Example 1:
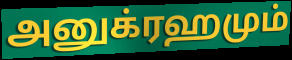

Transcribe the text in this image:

அனுக்ரஹமும்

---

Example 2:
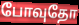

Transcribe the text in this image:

போவுதோ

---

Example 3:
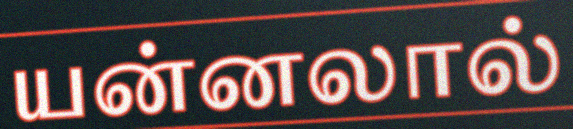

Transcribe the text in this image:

யன்னலால்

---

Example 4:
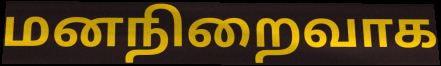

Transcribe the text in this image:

மனநிறைவாக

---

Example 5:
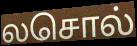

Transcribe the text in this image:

லசொல்